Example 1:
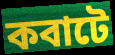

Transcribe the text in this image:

কবাটে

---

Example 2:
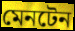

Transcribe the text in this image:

মেনটেন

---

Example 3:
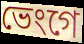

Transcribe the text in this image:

ভেংগে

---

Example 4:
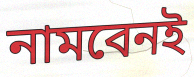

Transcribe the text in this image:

নামবেনই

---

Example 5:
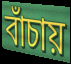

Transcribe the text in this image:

বাঁচায়